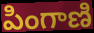
పింగాణి